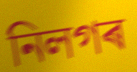
নিলগৰ